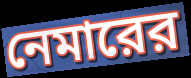
নেমারের